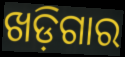
ଖଡ଼ିଗାର